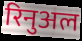
रिनुअल